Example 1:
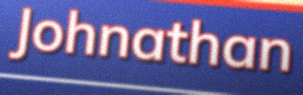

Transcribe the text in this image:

Johnathan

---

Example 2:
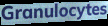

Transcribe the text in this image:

Granulocytes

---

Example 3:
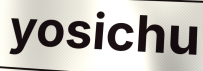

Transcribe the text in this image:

yosichu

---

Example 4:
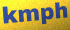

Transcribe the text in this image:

kmph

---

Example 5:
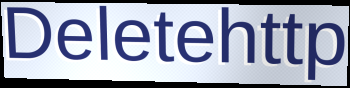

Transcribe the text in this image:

Deletehttp